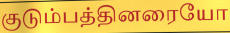
குடும்பத்தினரையோ